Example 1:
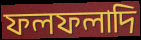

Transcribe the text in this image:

ফলফলাদি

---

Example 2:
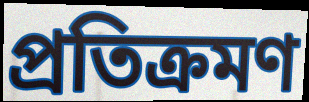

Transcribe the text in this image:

প্রতিক্রমণ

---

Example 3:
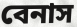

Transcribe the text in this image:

বেনাস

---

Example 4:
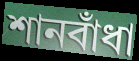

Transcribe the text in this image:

শানবাঁধা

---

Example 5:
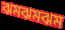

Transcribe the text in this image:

ঝমঝমঝম